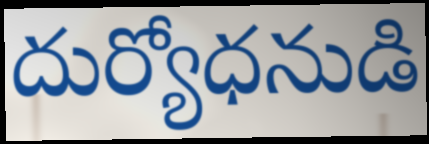
దుర్యోధనుడి